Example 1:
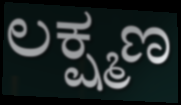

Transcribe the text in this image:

ಲಕ್ಷ್ಮಣ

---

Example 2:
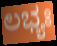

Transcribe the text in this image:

ಲಭ್ಯಃ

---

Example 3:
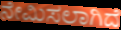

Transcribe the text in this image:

ನೇಮಿಸಲಾಗಿದೆ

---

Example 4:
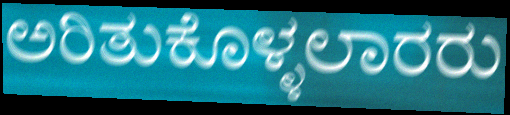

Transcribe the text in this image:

ಅರಿತುಕೊಳ್ಳಲಾರರು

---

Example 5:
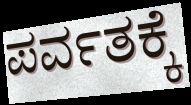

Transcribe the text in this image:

ಪರ್ವತಕ್ಕೆ